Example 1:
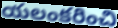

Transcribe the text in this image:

యలంకరించి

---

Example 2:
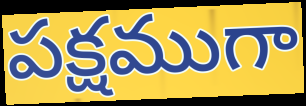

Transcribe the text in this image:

పక్షముగా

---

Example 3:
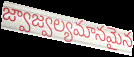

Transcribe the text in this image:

జ్వాజ్వల్యమానమైన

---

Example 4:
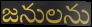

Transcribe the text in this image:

జనులను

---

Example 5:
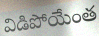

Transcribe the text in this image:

విడిపోయేంత